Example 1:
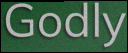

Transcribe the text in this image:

Godly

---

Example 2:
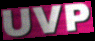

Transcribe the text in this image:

UVP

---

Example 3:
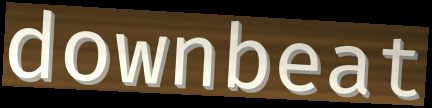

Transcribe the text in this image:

downbeat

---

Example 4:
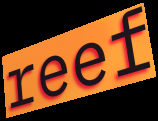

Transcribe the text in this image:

reef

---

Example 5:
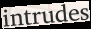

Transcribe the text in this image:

intrudes